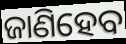
ଜାଣିହେବ